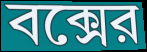
বক্সের